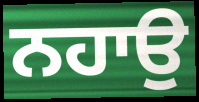
ਨਹਾਉ